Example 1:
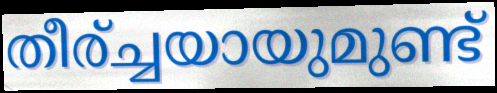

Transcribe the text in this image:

തീര്ച്ചയായുമുണ്ട്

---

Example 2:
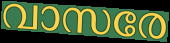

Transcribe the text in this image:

വാസരേ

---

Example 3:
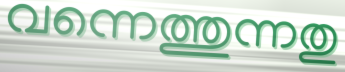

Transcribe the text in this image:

വന്നെത്തുന്നതു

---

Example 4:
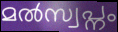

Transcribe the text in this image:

മൽസ്വപ്നം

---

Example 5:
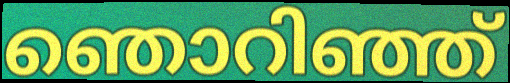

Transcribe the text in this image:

ഞൊറിഞ്ഞ്